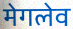
मेगलेव